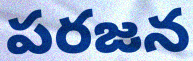
పరజన